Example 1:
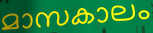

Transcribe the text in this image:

മാസകാലം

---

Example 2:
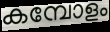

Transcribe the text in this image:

കമ്പോളം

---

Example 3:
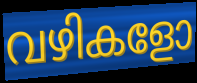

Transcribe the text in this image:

വഴികളോ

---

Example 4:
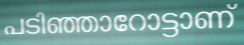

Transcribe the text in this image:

പടിഞ്ഞാറോട്ടാണ്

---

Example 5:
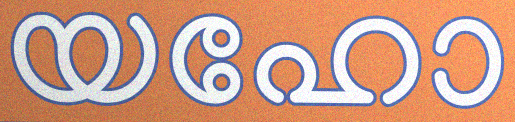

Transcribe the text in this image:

യഹോ